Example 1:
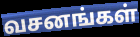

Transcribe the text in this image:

வசனங்கள்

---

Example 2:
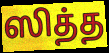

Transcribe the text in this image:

ஸித்த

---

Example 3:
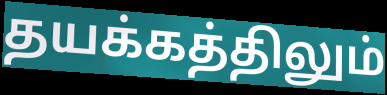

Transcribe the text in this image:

தயக்கத்திலும்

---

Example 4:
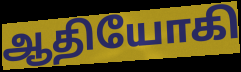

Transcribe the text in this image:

ஆதியோகி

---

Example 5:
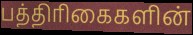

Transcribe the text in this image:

பத்திரிகைகளின்